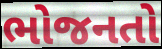
ભોજનતો